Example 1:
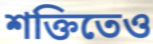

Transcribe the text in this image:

শক্তিতেও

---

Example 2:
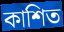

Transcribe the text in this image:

কাশিত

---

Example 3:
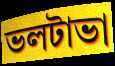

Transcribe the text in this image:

ভলটাভা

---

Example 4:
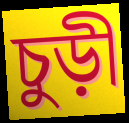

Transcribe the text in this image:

চুড়ী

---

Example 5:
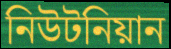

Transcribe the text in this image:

নিউটনিয়ান